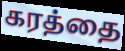
கரத்தை